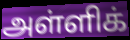
அள்ளிக்